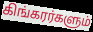
கிங்கரர்களும்